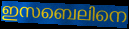
ഇസബെലിനെ